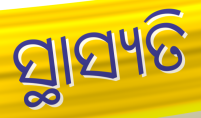
ସ୍ଥାସ୍ୟତି